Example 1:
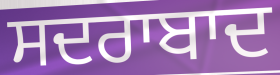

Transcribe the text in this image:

ਸਦਰਾਬਾਦ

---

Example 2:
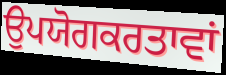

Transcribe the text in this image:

ਉਪਯੋਗਕਰਤਾਵਾਂ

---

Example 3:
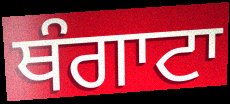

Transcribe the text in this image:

ਥੰਗਾਟਾ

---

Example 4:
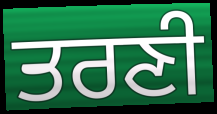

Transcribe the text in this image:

ਤਰਣੀ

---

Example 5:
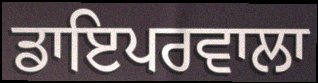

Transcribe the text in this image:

ਡਾਇਪਰਵਾਲਾ